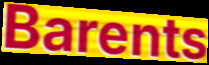
Barents